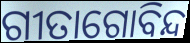
ଗୀତାଗୋବିନ୍ଦ